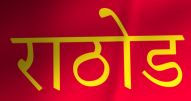
राठोड